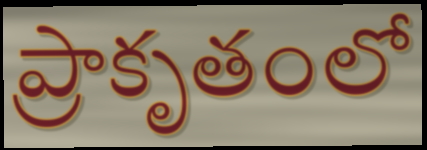
ప్రాకృతంలో